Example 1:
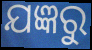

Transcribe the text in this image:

ଯଜ୍ଞରୁ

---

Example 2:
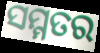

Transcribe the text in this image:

ସମ୍ମତର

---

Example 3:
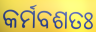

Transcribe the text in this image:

କର୍ମବଶତଃ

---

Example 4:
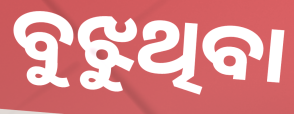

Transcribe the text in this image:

ବୁଝୁଥିବା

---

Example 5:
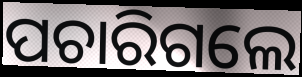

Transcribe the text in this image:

ପଚାରିଗଲେ